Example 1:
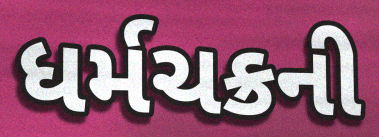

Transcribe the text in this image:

ધર્મચક્રની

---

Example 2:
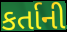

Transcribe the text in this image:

કર્તાની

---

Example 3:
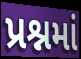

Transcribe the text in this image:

પ્રશ્નમાં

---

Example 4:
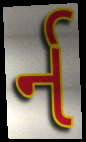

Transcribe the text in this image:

ર્ન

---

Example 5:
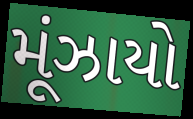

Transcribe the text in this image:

મૂંઝાયો